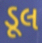
ડૂલ